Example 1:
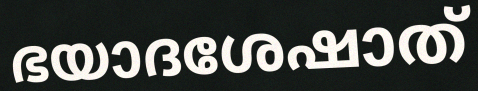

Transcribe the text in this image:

ഭയാദശേഷാത്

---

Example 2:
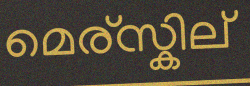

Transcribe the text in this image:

മെര്സ്കില്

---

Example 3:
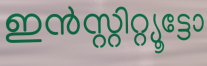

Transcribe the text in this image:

ഇൻസ്റ്റിറ്റ്യൂട്ടോ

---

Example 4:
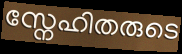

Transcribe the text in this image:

സ്നേഹിതരുടെ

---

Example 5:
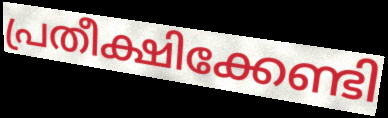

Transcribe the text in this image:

പ്രതീക്ഷിക്കേണ്ടി